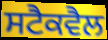
ਸਟੈਕਵੈਲ